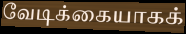
வேடிக்கையாகக்